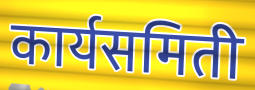
कार्यसमिती